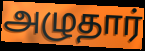
அழுதார்